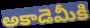
అకాడెమీకి